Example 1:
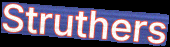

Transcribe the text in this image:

Struthers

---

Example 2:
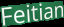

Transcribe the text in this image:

Feitian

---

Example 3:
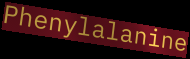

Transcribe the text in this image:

Phenylalanine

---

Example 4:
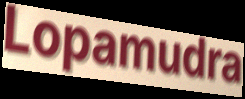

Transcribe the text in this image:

Lopamudra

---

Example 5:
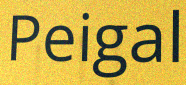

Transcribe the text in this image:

Peigal